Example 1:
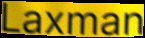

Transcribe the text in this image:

Laxman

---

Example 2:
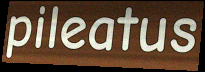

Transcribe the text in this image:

pileatus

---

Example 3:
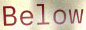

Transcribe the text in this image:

Below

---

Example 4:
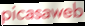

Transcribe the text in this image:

picasaweb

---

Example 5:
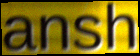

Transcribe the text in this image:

ansh